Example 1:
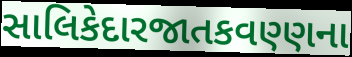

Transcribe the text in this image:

સાલિકેદારજાતકવણ્ણના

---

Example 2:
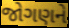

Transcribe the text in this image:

જોગણને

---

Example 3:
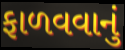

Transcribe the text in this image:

ફાળવવાનું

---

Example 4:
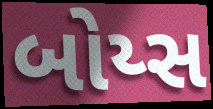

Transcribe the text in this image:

બોય્સ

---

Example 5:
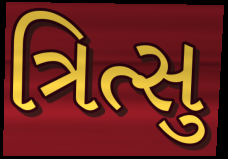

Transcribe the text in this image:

ત્રિત્સુ